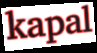
kapal